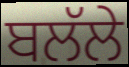
ਬਲੱਲੇ